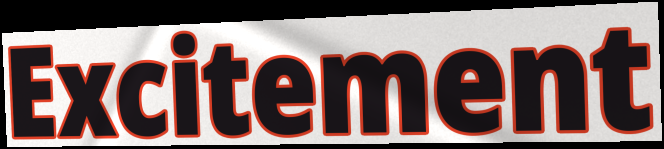
Excitement